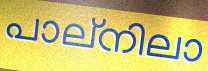
പാല്നിലാ